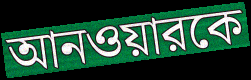
আনওয়ারকে